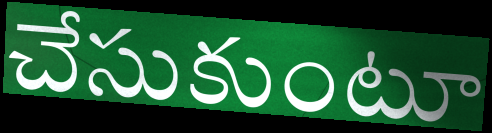
చేసుకుంటూ